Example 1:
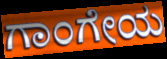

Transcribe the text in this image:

ಗಾಂಗೇಯ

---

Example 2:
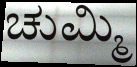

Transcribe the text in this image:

ಚುಮ್ಮಿ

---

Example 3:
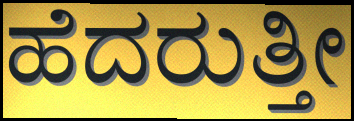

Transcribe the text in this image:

ಹೆದರುತ್ತೀ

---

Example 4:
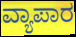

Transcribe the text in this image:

ವ್ಯಾಪಾರ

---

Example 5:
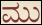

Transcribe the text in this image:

ಮು